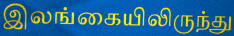
இலங்கையிலிருந்து